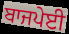
ਬਾਜਪੇਈ